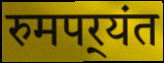
रुमपर्यंत